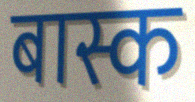
बास्क